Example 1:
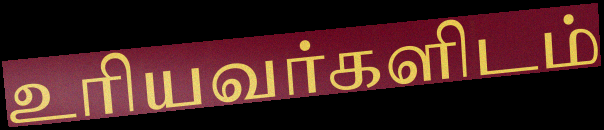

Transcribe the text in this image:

உரியவர்களிடம்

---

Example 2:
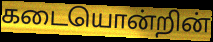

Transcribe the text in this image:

கடையொன்றின்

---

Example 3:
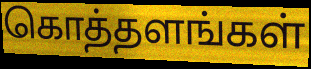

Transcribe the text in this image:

கொத்தளங்கள்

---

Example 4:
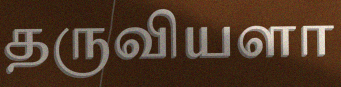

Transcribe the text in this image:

தருவியளா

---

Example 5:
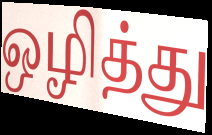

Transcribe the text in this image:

ஒழித்து